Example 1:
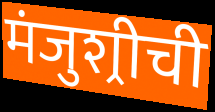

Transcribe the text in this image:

मंजुश्रीची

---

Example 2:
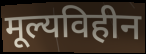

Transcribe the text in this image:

मूल्यविहीन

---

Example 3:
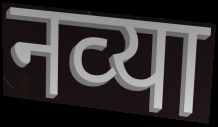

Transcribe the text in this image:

नव्‍या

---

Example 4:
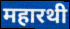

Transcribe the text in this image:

महारथी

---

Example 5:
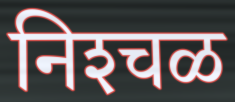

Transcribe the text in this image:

निश्‍चळ